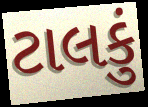
ટાલકું